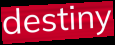
destiny